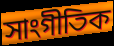
সাংগীতিক